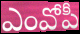
ఎంవోపీ